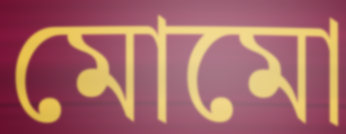
মোমো